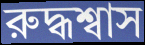
রুদ্ধশ্বাস